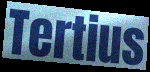
Tertius